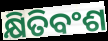
କ୍ଷିତିବଂଶ